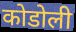
कोडोली